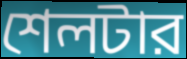
শেলটার